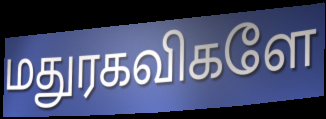
மதுரகவிகளே